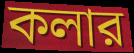
কলার